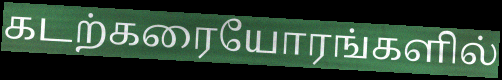
கடற்கரையோரங்களில்